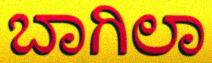
ಬಾಗಿಲಾ